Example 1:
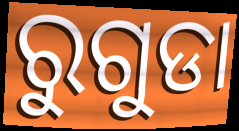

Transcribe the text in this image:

ରୁଗୁଡା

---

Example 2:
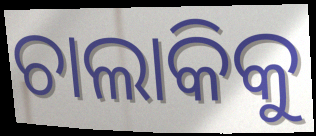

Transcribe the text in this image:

ଚାଲାକିକୁ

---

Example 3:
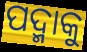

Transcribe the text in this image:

ପଦ୍ମାକୁ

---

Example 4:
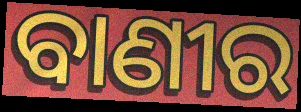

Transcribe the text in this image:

ବାଣୀର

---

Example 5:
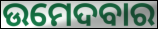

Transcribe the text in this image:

ଉମେଦବାର